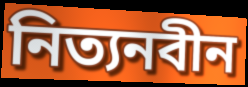
নিত্যনবীন